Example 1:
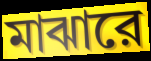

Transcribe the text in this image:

মাঝারে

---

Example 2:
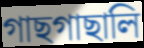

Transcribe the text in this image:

গাছগাছালি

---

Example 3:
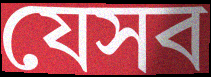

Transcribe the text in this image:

যেসব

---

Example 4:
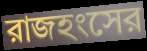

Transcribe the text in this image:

রাজহংসের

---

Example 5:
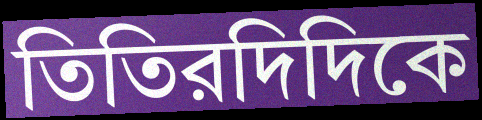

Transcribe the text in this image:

তিতিরদিদিকে